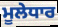
ਮੂਲੇਧਾਰ